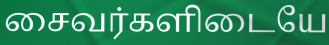
சைவர்களிடையே